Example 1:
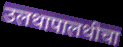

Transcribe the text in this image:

उलथापालथीचा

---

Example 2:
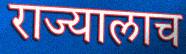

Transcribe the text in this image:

राज्यालाच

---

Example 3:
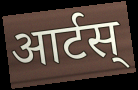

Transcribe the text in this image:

आर्टस्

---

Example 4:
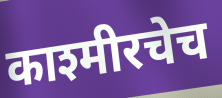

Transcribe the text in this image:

काश्मीरचेच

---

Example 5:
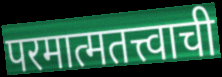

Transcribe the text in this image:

परमात्मतत्त्वाची